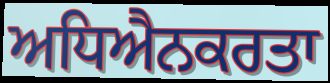
ਅਧਿਐਨਕਰਤਾ